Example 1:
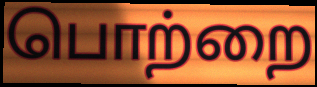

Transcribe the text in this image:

பொற்றை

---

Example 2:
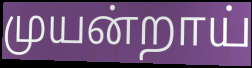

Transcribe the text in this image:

முயன்றாய்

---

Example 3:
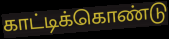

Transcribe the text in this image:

காட்டிக்கொண்டு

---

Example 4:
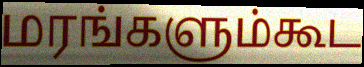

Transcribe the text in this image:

மரங்களும்கூட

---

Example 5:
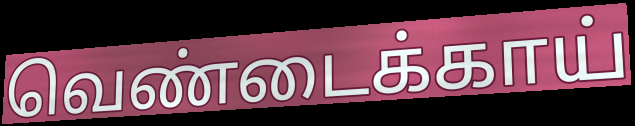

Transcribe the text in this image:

வெண்டைக்காய்